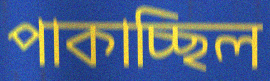
পাকাচ্ছিল